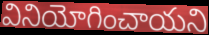
వినియోగించాయని